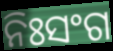
ନିଃସଂଗ